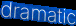
dramatic